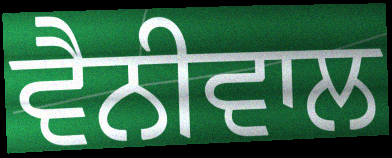
ਵੈਨੀਵਾਲ